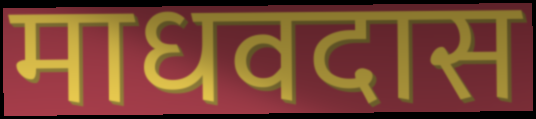
माधवदास